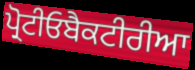
ਪ੍ਰੋਟੀਓਬੈਕਟੀਰੀਆ